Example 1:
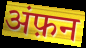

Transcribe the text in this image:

अंफ़न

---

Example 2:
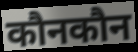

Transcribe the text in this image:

कौनकौन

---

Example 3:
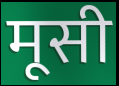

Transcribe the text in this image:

मूसी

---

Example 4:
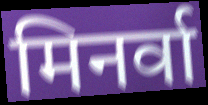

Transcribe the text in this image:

मिनर्वा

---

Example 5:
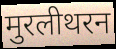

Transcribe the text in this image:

मुरलीथरन